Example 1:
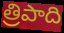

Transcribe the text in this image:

త్రిపాది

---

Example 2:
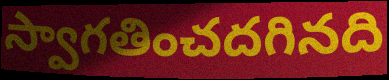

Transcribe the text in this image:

స్వాగతించదగినది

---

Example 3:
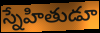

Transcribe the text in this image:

స్నేహితుడూ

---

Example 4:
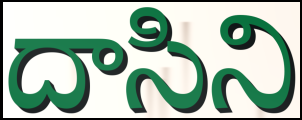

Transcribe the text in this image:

దాసిని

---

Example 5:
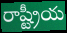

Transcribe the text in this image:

రాష్ట్రీయ